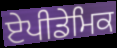
ਏਪੀਡੇਮਿਕ